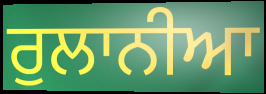
ਰੁਲਾਨੀਆ